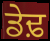
ਡੇਢ਼